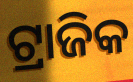
ଟ୍ରାଜିକ